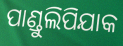
ପାଣ୍ଡୁଲିପିଯାକ